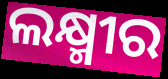
ଲକ୍ଷ୍ମୀର